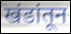
खंडांतून